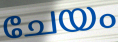
ചേയം